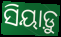
ସିୟାଡ଼ୁ